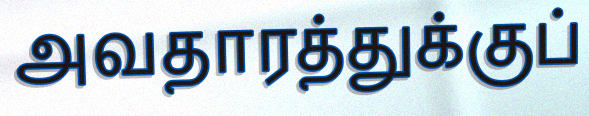
அவதாரத்துக்குப்